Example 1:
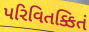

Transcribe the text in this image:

પરિવિતક્કિતં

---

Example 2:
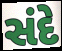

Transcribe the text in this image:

સંદે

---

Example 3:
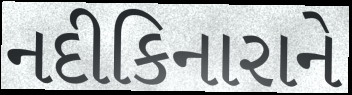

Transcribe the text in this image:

નદીકિનારાને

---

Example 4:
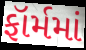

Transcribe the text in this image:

ફૉર્મમાં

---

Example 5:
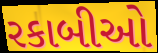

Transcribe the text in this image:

રકાબીઓ